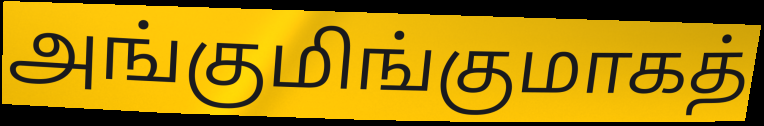
அங்குமிங்குமாகத்